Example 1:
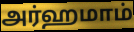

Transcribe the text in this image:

அர்ஹமாம்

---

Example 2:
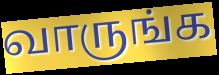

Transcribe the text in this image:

வாருங்க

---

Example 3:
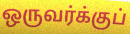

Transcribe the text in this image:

ஒருவர்க்குப்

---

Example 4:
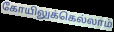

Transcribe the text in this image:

கோயிலுக்கெல்லாம்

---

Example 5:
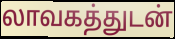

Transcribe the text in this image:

லாவகத்துடன்